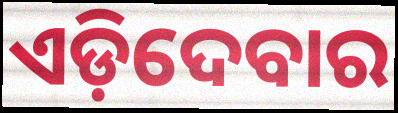
ଏଡ଼ିଦେବାର